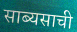
साब्यसाची